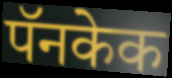
पॅनकेक